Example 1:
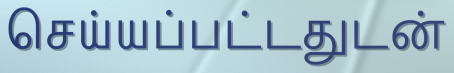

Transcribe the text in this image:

செய்யப்பட்டதுடன்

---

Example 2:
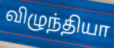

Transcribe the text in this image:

விழுந்தியா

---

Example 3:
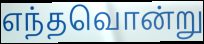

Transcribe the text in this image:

எந்தவொன்று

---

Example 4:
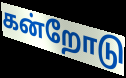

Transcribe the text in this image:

கன்றோடு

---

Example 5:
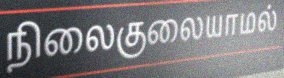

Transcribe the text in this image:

நிலைகுலையாமல்